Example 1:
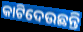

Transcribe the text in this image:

କାଟିଦେଉଛନ୍ତି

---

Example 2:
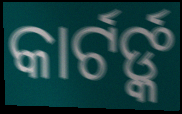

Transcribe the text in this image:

କାର୍ଟର୍ଙ୍କ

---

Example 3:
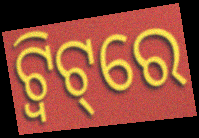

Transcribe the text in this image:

ଟ୍ବିଟ୍‌ରେ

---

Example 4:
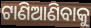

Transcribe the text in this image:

ଟାଣିଆଣିବାକୁ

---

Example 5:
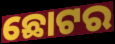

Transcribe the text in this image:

ଛୋଟର